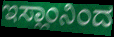
ಇಸ್ಲಾಂನಿಂದ